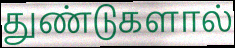
துண்டுகளால்